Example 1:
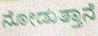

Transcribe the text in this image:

ನೋಡುತ್ತಾನೆ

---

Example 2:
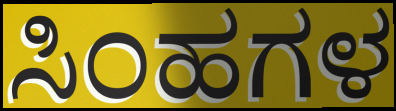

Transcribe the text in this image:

ಸಿಂಹಗಳ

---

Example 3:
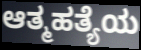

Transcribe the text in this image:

ಆತ್ಮಹತ್ಯೆಯ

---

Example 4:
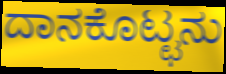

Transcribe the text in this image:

ದಾನಕೊಟ್ಟನು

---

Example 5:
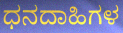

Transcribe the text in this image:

ಧನದಾಹಿಗಳ